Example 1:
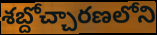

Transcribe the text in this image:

శబ్దోచ్చారణలోని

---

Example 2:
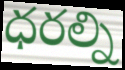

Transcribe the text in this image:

ధరల్ని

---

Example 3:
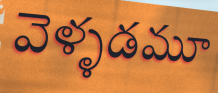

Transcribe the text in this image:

వెళ్ళడమూ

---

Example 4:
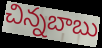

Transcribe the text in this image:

చిన్నబాబు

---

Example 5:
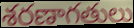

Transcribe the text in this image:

శరణాగతులు